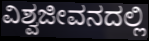
ವಿಶ್ವಜೀವನದಲ್ಲಿ